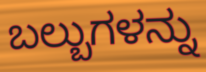
ಬಲ್ಬುಗಳನ್ನು